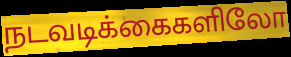
நடவடிக்கைகளிலோ